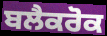
ਬਲੈਕਰੋਕ